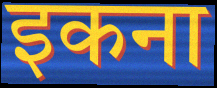
इकना